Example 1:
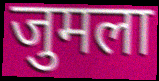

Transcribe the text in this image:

जुमला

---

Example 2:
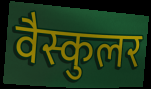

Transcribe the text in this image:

वैस्कुलर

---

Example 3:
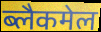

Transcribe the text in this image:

ब्लैकमेल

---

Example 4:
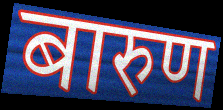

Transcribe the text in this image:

बारुण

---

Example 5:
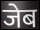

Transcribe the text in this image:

जेब